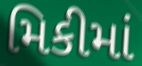
મિકીમાં